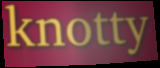
knotty